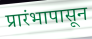
प्रारंभापासून